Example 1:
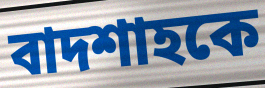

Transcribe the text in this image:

বাদশাহকে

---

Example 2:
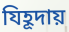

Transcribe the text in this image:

যিহূদায়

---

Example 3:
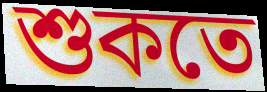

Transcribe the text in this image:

শুকতে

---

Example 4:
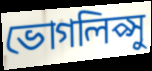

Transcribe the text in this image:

ভোগলিপ্সু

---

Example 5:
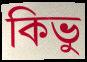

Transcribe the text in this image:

কিভু